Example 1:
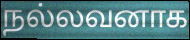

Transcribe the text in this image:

நல்லவனாக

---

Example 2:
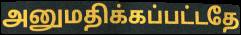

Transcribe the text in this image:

அனுமதிக்கப்பட்டதே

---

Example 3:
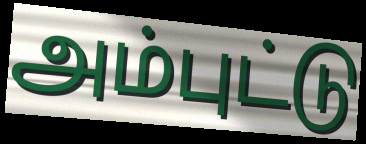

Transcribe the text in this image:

அம்புட்டு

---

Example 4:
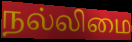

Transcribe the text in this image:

நல்லிமை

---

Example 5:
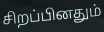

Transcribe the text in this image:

சிறப்பினதும்